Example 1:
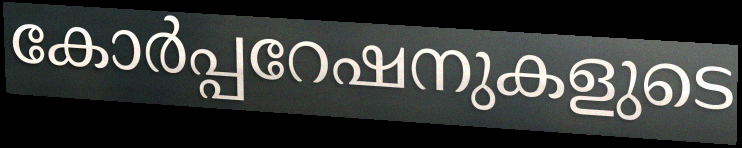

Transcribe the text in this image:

കോർപ്പറേഷനുകളുടെ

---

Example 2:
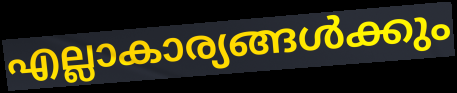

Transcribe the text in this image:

എല്ലാകാര്യങ്ങൾക്കും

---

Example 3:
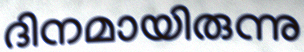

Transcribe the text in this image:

ദിനമായിരുന്നു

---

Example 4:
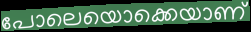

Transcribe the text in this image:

പോലെയൊക്കെയാണ്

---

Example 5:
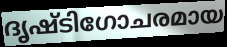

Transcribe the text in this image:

ദൃഷ്ടിഗോചരമായ